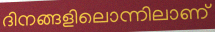
ദിനങ്ങളിലൊന്നിലാണ്